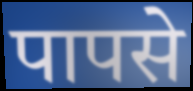
पापसे